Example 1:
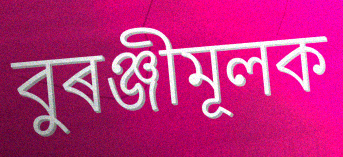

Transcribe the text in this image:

বুৰঞ্জীমূলক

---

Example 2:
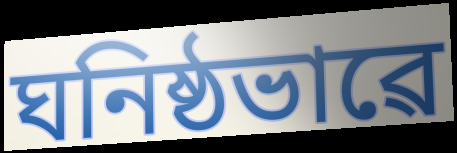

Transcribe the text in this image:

ঘনিষ্ঠভাৱে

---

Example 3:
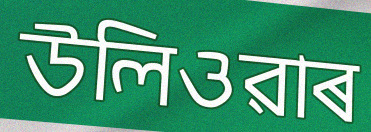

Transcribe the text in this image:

উলিওৱাৰ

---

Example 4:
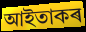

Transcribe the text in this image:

আইতাকৰ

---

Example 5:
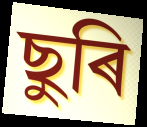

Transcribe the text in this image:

ছুৰি